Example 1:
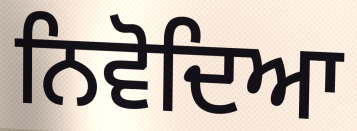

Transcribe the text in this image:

ਨਿਵੋਦਿਆ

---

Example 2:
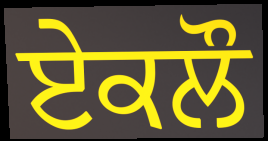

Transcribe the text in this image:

ਏਕਲੌ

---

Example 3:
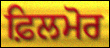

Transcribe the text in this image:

ਫ਼ਿਲਮੋਰ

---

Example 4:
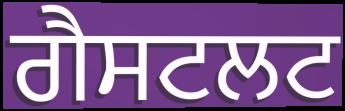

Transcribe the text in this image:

ਗੈਸਟਲਟ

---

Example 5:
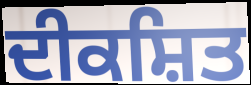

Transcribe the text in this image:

ਦੀਕਸ਼ਿਤ